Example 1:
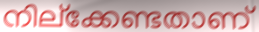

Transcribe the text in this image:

നില്ക്കേണ്ടതാണ്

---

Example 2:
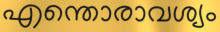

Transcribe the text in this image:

എന്തൊരാവശ്യം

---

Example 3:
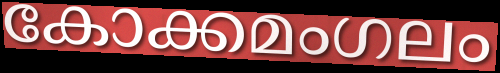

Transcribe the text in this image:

കോക്കമംഗലം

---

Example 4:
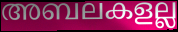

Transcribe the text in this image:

അബലകളല്ല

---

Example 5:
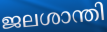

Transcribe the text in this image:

ജലശാന്തി